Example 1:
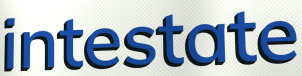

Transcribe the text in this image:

intestate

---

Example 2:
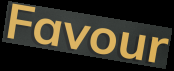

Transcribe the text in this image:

Favour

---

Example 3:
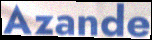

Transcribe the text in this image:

Azande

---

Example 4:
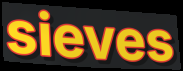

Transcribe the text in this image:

sieves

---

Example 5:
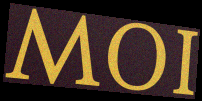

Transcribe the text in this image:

MOI